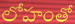
లోహంతో